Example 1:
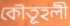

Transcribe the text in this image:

কৌতূহলী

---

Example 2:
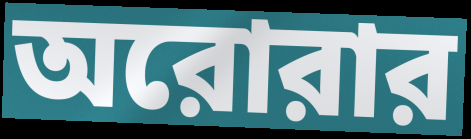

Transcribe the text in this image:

অরোরার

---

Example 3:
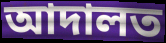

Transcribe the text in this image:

আদালত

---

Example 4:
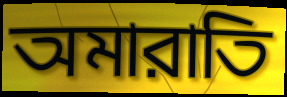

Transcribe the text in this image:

অমারাতি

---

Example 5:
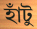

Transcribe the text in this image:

হাঁটু